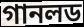
গানলড